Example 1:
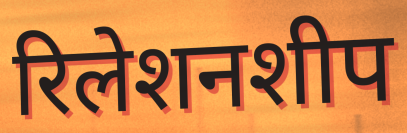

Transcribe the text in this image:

रिलेशनशीप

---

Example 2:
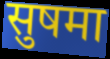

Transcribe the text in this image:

सुषमा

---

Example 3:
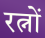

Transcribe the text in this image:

रत्नों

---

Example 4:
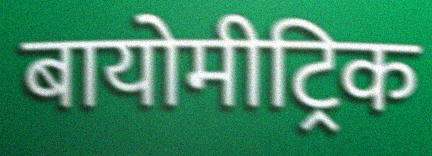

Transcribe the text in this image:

बायोमीट्रिक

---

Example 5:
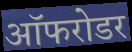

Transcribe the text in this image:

ऑफरोडर